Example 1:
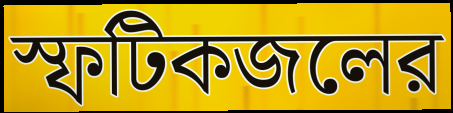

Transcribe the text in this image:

স্ফটিকজলের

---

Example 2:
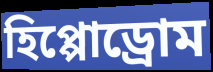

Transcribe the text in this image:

হিপ্পোড্রোম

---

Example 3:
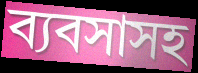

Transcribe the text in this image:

ব্যবসাসহ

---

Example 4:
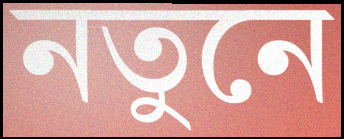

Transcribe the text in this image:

নতুনে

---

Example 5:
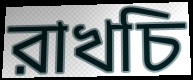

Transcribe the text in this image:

রাখচি